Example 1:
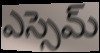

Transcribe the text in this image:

ఎస్సెమ్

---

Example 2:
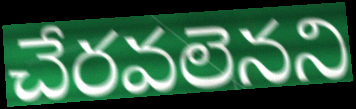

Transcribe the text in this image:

చేరవలెనని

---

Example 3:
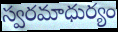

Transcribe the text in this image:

స్వరమాధుర్యం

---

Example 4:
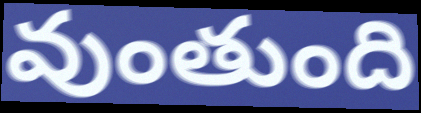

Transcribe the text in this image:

వుంతుంది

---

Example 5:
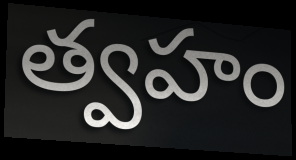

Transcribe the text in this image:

త్వహం